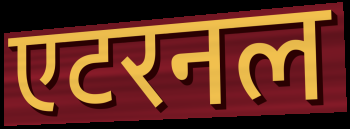
एटरनल